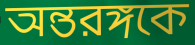
অন্তরঙ্গকে